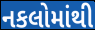
નકલોમાંથી